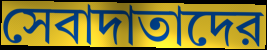
সেবাদাতাদের